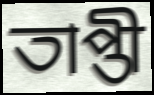
তাপ্তী